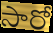
సారో